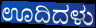
ಊದಿದಳು